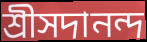
শ্রীসদানন্দ